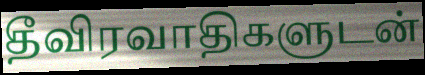
தீவிரவாதிகளுடன்